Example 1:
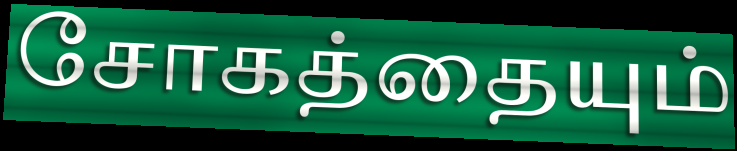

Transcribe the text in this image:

சோகத்தையும்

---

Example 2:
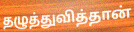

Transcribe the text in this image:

தழுத்துவித்தான்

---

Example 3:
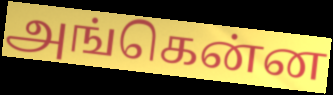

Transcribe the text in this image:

அங்கென்ன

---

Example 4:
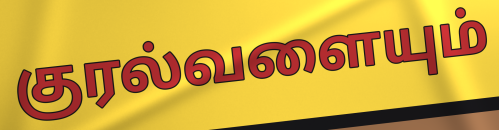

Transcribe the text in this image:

குரல்வளையும்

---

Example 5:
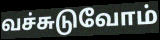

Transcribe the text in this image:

வச்சுடுவோம்